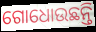
ଗୋଧୋଉଛନ୍ତି